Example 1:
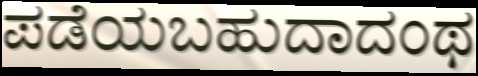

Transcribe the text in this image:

ಪಡೆಯಬಹುದಾದಂಥ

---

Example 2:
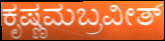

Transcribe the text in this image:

ಕೃಷ್ಣಮಬ್ರವೀತ್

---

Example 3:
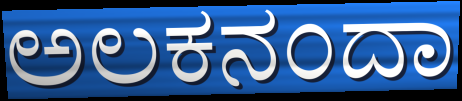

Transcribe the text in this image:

ಅಲಕನಂದಾ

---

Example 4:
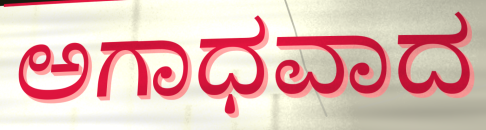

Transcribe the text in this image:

ಅಗಾಧವಾದ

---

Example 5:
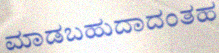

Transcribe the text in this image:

ಮಾಡಬಹುದಾದಂತಹ